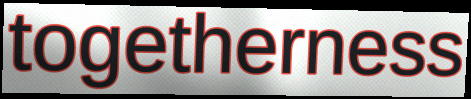
togetherness